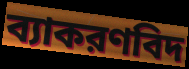
ব্যাকরণবিদ